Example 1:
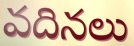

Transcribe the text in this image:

వదినలు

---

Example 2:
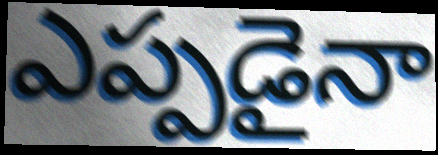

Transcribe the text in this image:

ఎప్పడైనా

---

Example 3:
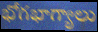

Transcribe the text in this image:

భోగభాగ్యాలు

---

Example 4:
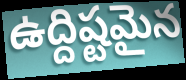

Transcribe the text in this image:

ఉద్దిష్టమైన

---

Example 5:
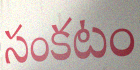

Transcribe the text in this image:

సంకటం